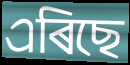
এৰিছে